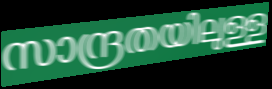
സാന്ദ്രതയിലുള്ള